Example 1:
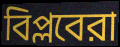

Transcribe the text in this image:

বিপ্লবেরা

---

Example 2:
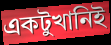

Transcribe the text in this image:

একটুখানিই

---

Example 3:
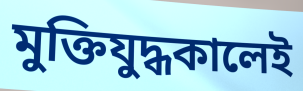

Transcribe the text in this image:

মুক্তিযুদ্ধকালেই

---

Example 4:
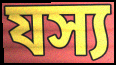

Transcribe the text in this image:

যস্য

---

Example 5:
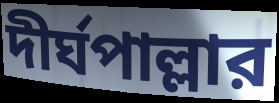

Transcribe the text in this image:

দীর্ঘপাল্লার